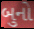
બુનો